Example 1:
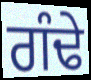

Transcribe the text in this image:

ਗੰਢੇ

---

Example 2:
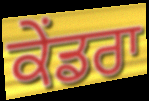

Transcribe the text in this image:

ਕੇਂਡਰਾ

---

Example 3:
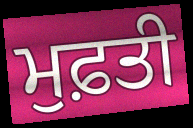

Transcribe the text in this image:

ਮੁਫ਼ਤੀ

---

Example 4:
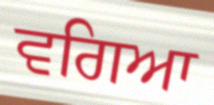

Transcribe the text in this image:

ਵਗਿਆ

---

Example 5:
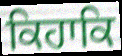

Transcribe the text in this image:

ਕਿਹਾਕਿ